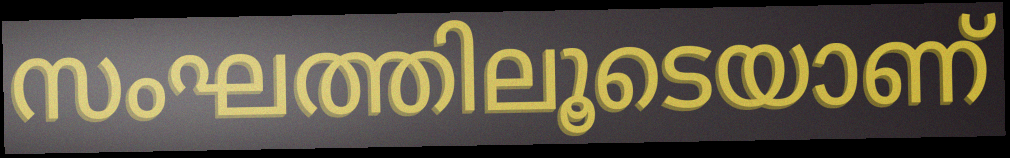
സംഘത്തിലൂടെയാണ്